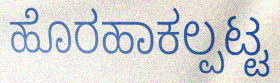
ಹೊರಹಾಕಲ್ಪಟ್ಟ